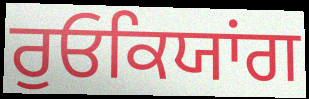
ਰੁਓਕਿਯਾਂਗ